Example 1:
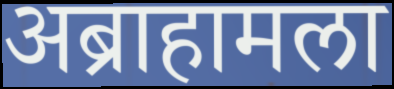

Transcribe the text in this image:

अब्राहामला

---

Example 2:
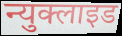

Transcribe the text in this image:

न्युक्लाइड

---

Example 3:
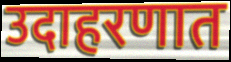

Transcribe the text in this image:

उदाहरणात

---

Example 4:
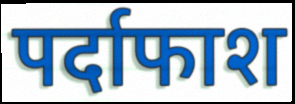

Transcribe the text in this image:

पर्दाफाश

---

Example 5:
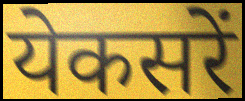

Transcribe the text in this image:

येकसरें